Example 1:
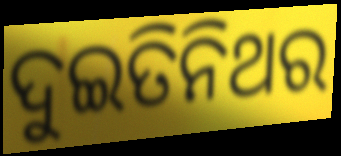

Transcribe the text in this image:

ଦୁଇତିନିଥର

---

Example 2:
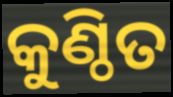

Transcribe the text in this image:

କୁଣ୍ଠିତ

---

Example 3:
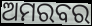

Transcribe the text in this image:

ଅମରବର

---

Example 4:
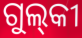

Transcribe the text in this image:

ଗୁଲ୍‌କୀ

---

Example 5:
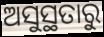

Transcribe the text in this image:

ଅସୁସ୍ଥତାରୁ